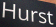
Hurst